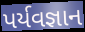
પર્યવજ્ઞાન